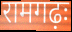
रामगढ़ः